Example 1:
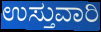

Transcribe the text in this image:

ಉಸ್ತುವಾರಿ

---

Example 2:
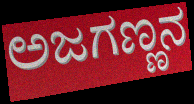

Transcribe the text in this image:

ಅಜಗಣ್ಣನ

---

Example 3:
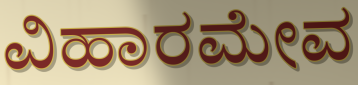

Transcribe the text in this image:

ವಿಹಾರಮೇವ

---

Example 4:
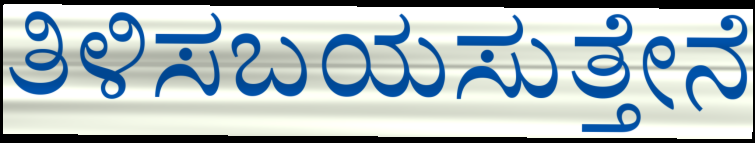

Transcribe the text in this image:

ತಿಳಿಸಬಯಸುತ್ತೇನೆ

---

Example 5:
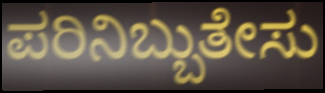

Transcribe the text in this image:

ಪರಿನಿಬ್ಬುತೇಸು